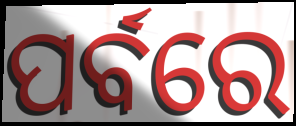
ପର୍ବରେ